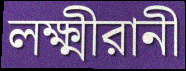
লক্ষ্মীরানী